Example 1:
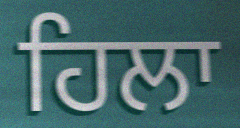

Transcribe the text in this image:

ਹਿਲਾ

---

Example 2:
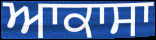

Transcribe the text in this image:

ਆਕਾਸਾ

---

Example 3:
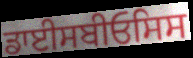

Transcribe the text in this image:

ਡਾਈਸਬੀਓਸਿਸ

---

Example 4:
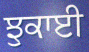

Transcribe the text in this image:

ਝੁਕਾਈ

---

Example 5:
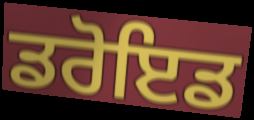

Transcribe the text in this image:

ਡਰੋਇਡ